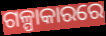
ଗଳ୍ପାକାରରେ